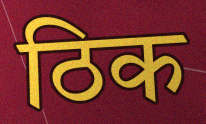
ठिक